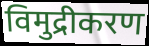
विमुद्रीकरण